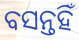
ବସନ୍ତହିଁ